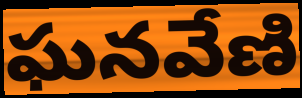
ఘనవేణి